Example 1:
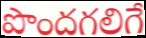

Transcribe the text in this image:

పొందగలిగే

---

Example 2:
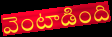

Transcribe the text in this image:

వెంటాడింది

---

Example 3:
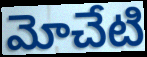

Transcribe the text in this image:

మోచేటి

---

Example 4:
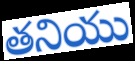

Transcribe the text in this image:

తనియు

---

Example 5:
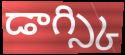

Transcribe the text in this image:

డాగ్స్కి